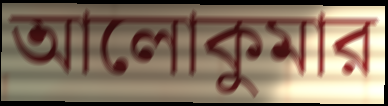
আলোকুমার